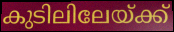
കുടിലിലേയ്ക്ക്